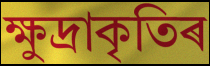
ক্ষুদ্ৰাকৃতিৰ